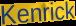
Kenrick